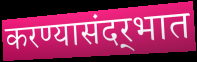
करण्यासंदर्भात